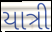
યાત્રી